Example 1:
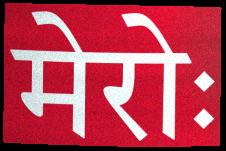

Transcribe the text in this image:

मेरोः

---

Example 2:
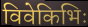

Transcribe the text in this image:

विवेकिभिः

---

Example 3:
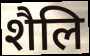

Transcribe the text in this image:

शैलि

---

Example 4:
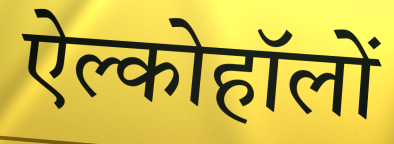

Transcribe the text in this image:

ऐल्कोहॉलों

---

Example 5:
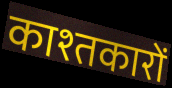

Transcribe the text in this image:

काश्तकारों